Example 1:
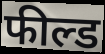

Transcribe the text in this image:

फील्ड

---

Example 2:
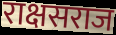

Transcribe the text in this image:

राक्षसराज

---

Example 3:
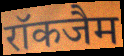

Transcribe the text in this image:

रॉकजैम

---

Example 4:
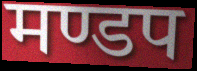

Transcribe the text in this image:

मण्‍डप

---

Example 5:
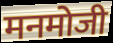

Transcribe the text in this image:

मनमोजी